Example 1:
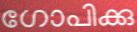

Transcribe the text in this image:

ഗോപിക്കു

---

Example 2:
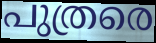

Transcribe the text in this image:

പുത്രരെ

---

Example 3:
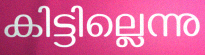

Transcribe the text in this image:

കിട്ടില്ലെന്നു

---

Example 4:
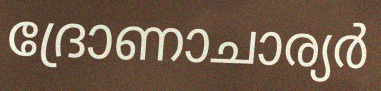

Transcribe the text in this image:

ദ്രോണാചാര്യർ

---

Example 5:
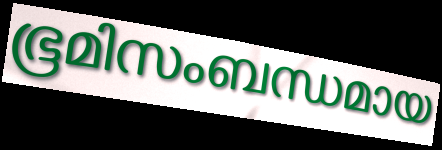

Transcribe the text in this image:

ഭൂമിസംബന്ധമായ